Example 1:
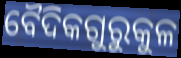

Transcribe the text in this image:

ବୈଦିକଗୁରୁକୁଳ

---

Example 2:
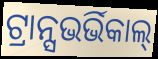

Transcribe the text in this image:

ଟ୍ରାନ୍ସଭର୍ଭିକାଲ୍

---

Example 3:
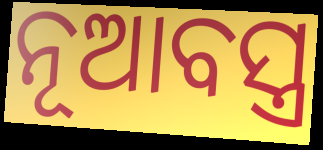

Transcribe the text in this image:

ନୂଆବସ୍ତ୍ର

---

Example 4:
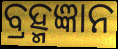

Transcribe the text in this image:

ବ୍ରହ୍ମଜ୍ଞାନ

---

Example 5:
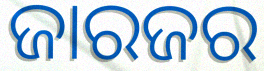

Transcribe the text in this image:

ଜାରଜର